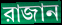
রাজান